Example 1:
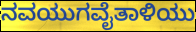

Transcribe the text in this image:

ನವಯುಗವೈತಾಳಿಯು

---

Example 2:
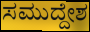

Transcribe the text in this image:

ಸಮುದ್ದೇಶ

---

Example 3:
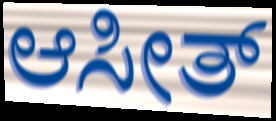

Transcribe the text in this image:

ಆಸೀತ್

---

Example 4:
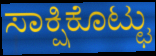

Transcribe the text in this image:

ಸಾಕ್ಷಿಕೊಟ್ಟು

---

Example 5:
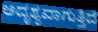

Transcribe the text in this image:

ಅದೃಶ್ಯವಾಗುತ್ತಿದೆ